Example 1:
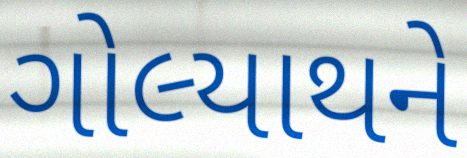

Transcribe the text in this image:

ગોલ્યાથને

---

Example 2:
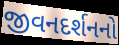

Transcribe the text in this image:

જીવનદર્શનનો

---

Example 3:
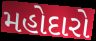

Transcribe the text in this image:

મહોદારો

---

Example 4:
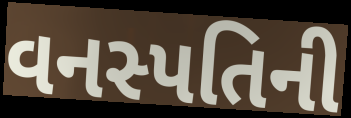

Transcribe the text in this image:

વનસ્પતિની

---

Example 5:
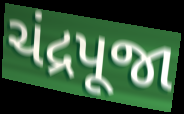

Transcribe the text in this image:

ચંદ્રપૂજા